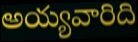
అయ్యవారిది